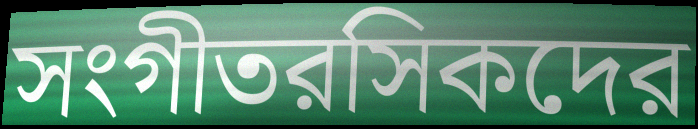
সংগীতরসিকদের